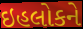
ઇહલોકને